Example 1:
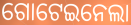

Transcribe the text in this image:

ଗୋଟେଇନେଲା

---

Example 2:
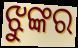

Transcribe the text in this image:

ଝୁଙ୍କର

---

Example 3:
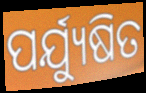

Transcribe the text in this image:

ପର୍ଯ୍ୟୁଷିତ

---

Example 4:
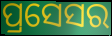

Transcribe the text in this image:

ପ୍ରସେସର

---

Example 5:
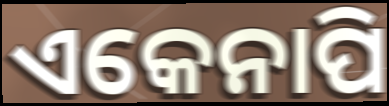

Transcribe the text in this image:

ଏକେନାପି